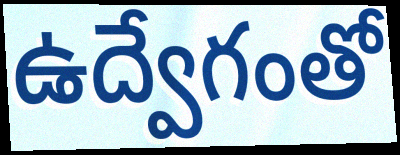
ఉద్వేగంతో